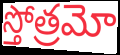
స్తోత్రమో